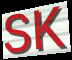
SK